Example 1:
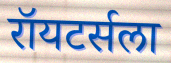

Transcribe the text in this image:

रॉयटर्सला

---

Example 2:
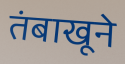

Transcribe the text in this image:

तंबाखूने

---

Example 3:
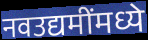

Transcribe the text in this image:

नवउद्यमींमध्ये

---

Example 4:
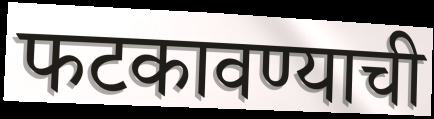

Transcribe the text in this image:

फटकावण्याची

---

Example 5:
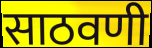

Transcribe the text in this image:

साठवणी